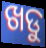
ଖଡୁ